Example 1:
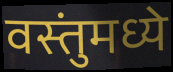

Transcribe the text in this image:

वस्तुंमध्ये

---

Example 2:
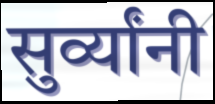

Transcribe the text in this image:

सुर्व्यांनी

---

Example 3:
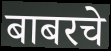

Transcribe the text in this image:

बाबरचे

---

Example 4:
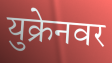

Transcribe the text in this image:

युक्रेनवर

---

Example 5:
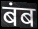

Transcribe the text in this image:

बंब